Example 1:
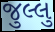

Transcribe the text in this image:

જુલ્લુ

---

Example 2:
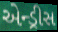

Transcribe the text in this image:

એન્ડ્રીસ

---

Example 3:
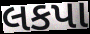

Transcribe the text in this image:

લકપા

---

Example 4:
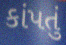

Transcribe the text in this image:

કાંપતું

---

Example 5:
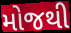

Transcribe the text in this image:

મોજથી